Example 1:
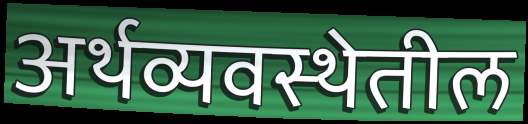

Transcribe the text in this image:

अर्थव्यवस्थेतील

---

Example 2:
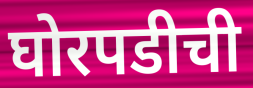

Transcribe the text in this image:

घोरपडीची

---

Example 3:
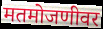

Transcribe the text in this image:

मतमोजणीवर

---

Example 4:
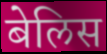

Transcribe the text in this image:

बेलिस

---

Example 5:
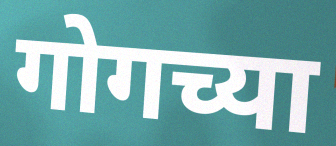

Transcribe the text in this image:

गोगच्या